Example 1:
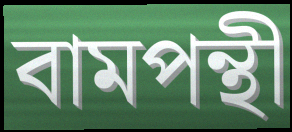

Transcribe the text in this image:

বামপন্থী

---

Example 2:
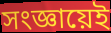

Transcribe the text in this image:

সংজ্ঞায়েই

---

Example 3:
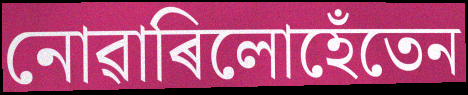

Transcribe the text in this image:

নোৱাৰিলোহেঁতেন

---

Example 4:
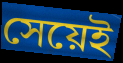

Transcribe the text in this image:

সেয়েই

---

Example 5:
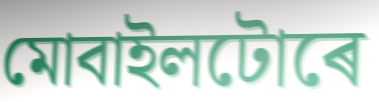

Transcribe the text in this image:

মোবাইলটোৰে